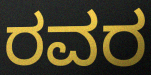
ರವರ